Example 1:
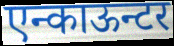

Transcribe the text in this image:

एन्काऊन्टर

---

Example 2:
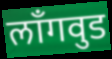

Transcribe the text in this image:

लाँगवुड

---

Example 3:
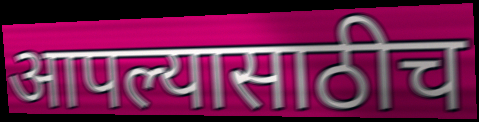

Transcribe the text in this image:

आपल्यासाठीच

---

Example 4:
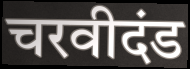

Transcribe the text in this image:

चरवीदंड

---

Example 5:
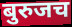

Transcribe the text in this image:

बुरुजच